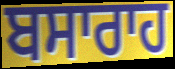
ਬਸਾਰਾਹ